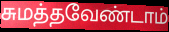
சுமத்தவேண்டாம்